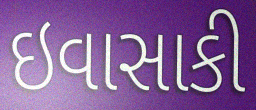
ઇવાસાકી